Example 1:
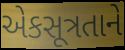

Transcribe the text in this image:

એકસૂત્રતાને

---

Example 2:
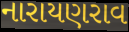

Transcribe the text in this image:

નારાયણરાવ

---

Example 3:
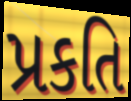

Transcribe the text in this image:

પ્રકતિ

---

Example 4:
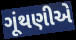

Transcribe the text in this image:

ગૂંથણીએ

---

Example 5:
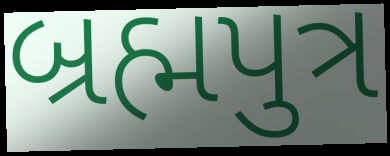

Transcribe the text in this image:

બ્રહ્મપુત્ર